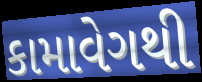
કામાવેગથી